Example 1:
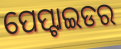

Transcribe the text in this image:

ପେପ୍ଟାଇଡର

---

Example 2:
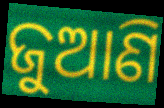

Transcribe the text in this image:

ଜୁଆଣି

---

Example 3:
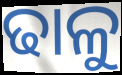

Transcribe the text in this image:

ଢାଳୁ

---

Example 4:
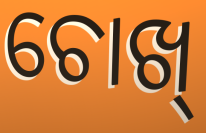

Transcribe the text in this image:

ଚୋଖ୍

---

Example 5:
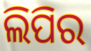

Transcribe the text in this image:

ଲିପିର